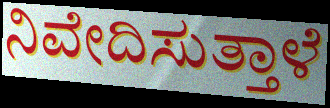
ನಿವೇದಿಸುತ್ತಾಳೆ